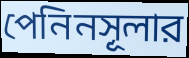
পেনিনসূলার